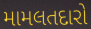
મામલતદારો